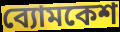
ব্যোমকেশ